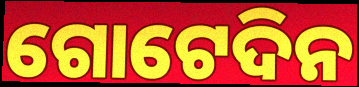
ଗୋଟେଦିନ